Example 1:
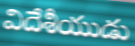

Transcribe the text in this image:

విదేశీయుడు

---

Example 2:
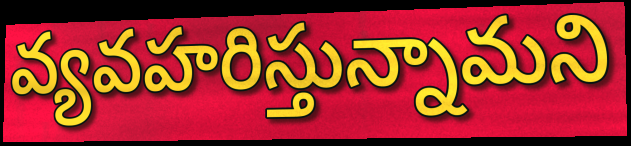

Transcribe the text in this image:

వ్యవహరిస్తున్నామని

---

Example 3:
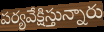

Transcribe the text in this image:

పర్యవేక్షిస్తున్నారు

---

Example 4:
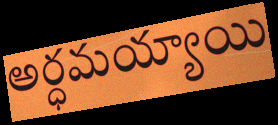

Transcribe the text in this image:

అర్ధమయ్యాయి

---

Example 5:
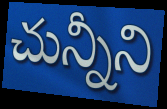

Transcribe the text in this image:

చున్నీని